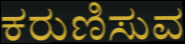
ಕರುಣಿಸುವ